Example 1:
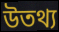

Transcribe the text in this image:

উতথ্য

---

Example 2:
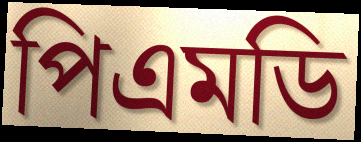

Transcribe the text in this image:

পিএমডি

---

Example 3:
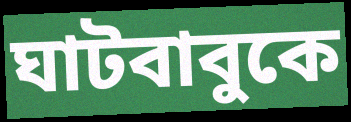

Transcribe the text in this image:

ঘাটবাবুকে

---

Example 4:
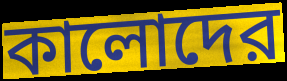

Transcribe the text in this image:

কালোদের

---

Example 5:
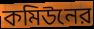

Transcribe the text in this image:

কমিউনের